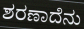
ಶರಣಾದೆನು